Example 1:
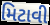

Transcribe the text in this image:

મિટાવી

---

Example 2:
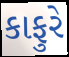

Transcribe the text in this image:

કાફુરે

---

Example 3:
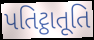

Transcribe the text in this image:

પતિટ્ઠાતૂતિ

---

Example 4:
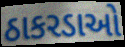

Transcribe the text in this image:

ઠાકરડાઓ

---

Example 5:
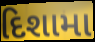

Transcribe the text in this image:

દિશામા